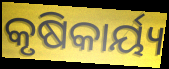
କୃଷିକାର୍ୟ୍ୟ